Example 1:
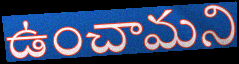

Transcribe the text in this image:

ఉంచామని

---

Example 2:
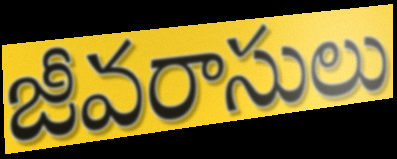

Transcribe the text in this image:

జీవరాసులు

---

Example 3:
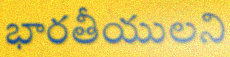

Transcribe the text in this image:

భారతీయులని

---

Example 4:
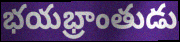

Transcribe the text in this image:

భయభ్రాంతుడు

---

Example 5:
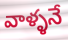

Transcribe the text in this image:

వాళ్ళనే